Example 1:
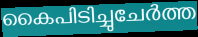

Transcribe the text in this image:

കൈപിടിച്ചുചേർത്ത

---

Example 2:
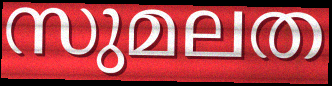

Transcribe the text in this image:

സുമലത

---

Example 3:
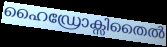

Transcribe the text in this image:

ഹൈഡ്രോക്സിതൈൽ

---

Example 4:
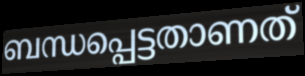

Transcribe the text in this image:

ബന്ധപ്പെട്ടതാണത്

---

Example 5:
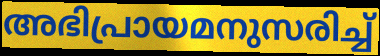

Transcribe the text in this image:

അഭിപ്രായമനുസരിച്ച്